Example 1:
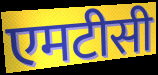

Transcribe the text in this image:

एमटीसी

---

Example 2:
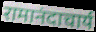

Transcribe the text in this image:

रामानंदाचार्य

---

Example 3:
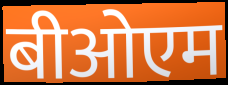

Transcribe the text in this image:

बीओएम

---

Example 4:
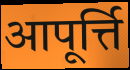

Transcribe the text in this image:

आपूर्त्ति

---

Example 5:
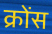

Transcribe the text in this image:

क्रोंस